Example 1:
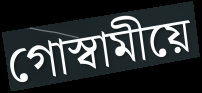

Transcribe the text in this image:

গোস্বামীয়ে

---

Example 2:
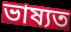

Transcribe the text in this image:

ভাষ্যত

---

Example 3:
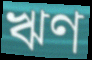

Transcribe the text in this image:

ঋণ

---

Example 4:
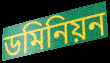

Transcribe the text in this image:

ডমিনিয়ন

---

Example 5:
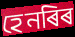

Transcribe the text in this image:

হেনৰিৰ